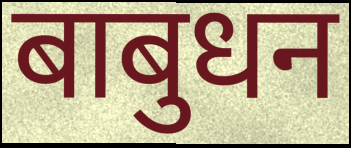
बाबुधन